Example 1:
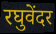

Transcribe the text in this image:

रघुवेंदर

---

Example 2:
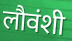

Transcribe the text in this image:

लौवंशी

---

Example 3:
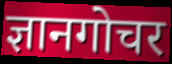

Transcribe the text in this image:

ज्ञानगोचर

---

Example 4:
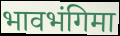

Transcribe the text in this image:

भावभंगिमा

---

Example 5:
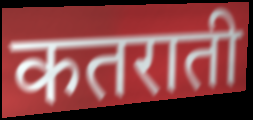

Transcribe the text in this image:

कतराती